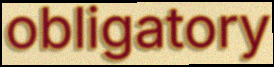
obligatory